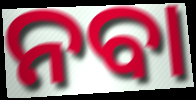
ନବା